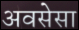
अवसेसा